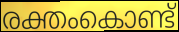
രക്തംകൊണ്ട്